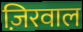
ज़िरवाल